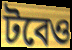
টবেও